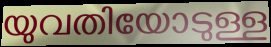
യുവതിയോടുള്ള